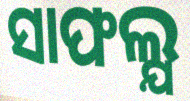
ସାଫଲ୍ଯ